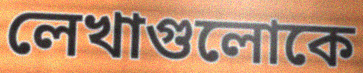
লেখাগুলোকে